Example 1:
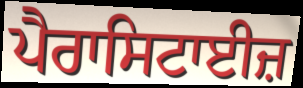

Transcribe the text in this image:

ਪੈਰਾਸਿਟਾਈਜ਼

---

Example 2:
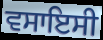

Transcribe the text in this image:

ਵਸਾਇਸੀ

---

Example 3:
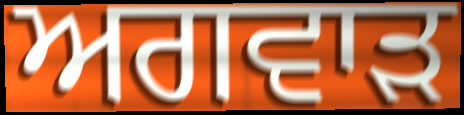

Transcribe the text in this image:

ਅਗਵਾੜ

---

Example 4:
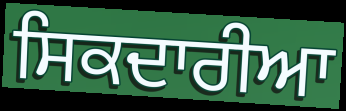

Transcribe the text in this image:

ਸਿਕਦਾਰੀਆ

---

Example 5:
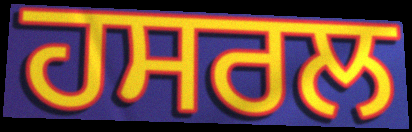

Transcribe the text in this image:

ਹਸਰਲ